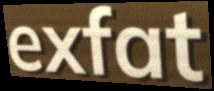
exfat